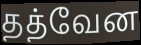
தத்வேன